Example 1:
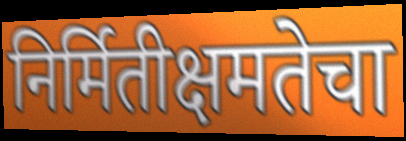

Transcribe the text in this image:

निर्मितीक्षमतेचा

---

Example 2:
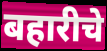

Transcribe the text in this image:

बहारीचे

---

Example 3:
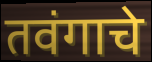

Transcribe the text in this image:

तवंगाचे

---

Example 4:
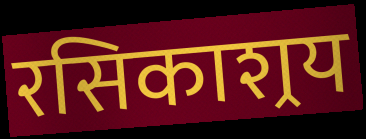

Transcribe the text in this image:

रसिकाश्रय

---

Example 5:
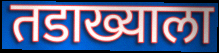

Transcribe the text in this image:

तडाख्याला